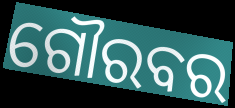
ଗୌରବର